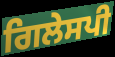
ਗਿਲੇਸਪੀ